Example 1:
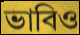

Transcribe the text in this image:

ভাবিও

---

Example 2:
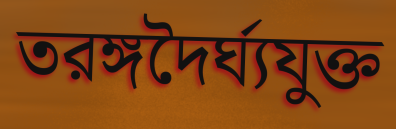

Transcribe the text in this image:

তরঙ্গদৈর্ঘ্যযুক্ত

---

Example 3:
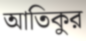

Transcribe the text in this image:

আতিকুর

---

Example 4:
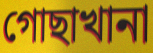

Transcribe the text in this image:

গোছাখানা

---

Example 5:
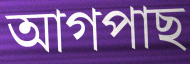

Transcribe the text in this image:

আগপাছ